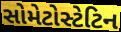
સોમેટોસ્ટેટિન